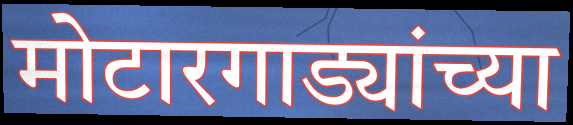
मोटारगाड्यांच्या